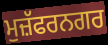
ਮੁਜ਼ੱਫਰਨਗਰ